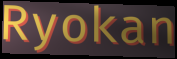
Ryokan